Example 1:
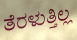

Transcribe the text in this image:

ತೆರಳುತ್ತಿಲ್ಲ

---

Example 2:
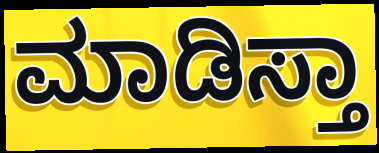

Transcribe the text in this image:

ಮಾಡಿಸ್ತಾ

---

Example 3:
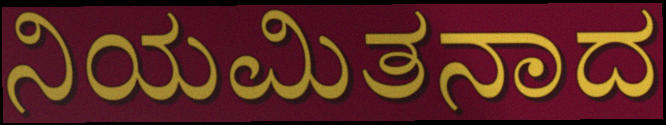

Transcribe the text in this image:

ನಿಯಮಿತನಾದ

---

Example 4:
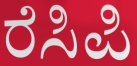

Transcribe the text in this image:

ರೆಸಿಪಿ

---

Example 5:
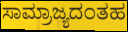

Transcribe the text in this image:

ಸಾಮ್ರಾಜ್ಯದಂತಹ